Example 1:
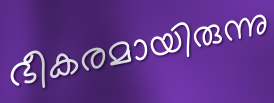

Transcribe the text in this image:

ഭീകരമായിരുന്നു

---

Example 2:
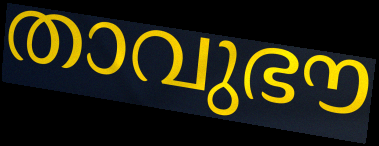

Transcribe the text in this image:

താവുഭൗ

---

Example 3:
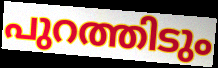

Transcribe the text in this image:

പുറത്തിടും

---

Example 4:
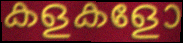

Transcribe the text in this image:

കളകളോ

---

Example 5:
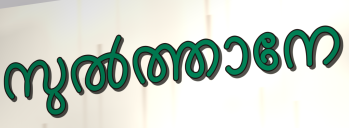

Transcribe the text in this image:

സുൽത്താനേ